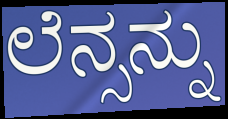
ಲೆನ್ಸನ್ನು